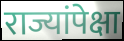
राज्यांपेक्षा